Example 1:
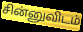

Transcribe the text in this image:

சின்னுவிடம்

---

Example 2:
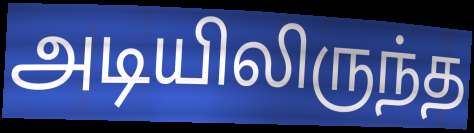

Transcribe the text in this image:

அடியிலிருந்த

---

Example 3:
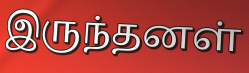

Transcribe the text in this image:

இருந்தனள்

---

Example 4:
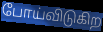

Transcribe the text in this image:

போய்விடுகிற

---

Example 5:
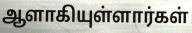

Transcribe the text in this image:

ஆளாகியுள்ளார்கள்